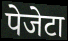
पेजेटा